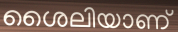
ശൈലിയാണ്